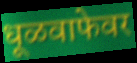
धूळवाफेवर